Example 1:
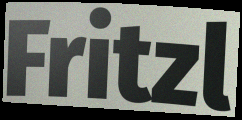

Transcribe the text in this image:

Fritzl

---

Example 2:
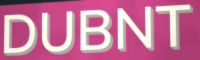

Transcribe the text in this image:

DUBNT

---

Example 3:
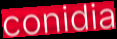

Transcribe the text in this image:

conidia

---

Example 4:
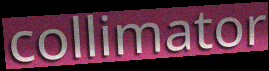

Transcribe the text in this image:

collimator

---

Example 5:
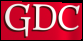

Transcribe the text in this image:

GDC